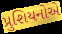
પ્રુશિયનોએ